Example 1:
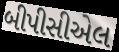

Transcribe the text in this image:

બીપીસીએલ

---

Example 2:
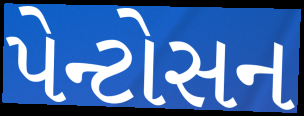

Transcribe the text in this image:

પેન્ટોસન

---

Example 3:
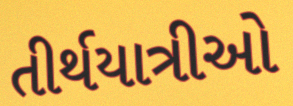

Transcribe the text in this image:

તીર્થયાત્રીઓ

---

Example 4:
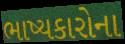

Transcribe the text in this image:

ભાષ્યકારોના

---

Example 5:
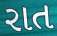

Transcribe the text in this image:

રાત